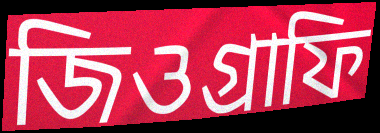
জিওগ্রাফি